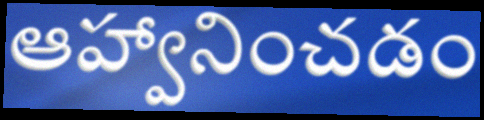
ఆహ్వానించడం